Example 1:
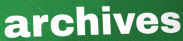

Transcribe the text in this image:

archives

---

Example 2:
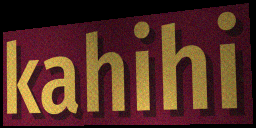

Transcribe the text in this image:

kahihi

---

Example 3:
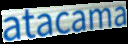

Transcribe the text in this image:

atacama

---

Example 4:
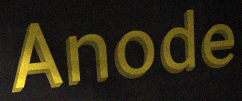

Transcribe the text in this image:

Anode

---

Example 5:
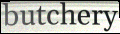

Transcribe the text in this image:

butchery